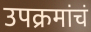
उपक्रमांचं